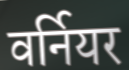
वर्नियर